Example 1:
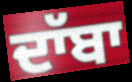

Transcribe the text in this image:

ਦਾੱਬਾ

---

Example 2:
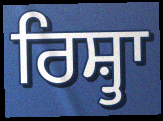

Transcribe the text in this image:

ਰਿਸ਼੍ਤਾ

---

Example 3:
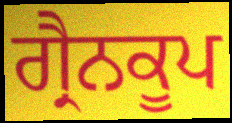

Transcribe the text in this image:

ਗ੍ਰੈਨਕੂਪ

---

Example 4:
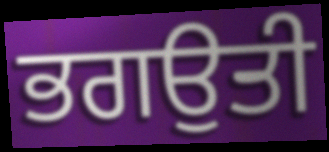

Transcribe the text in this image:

ਭਗਉਤੀ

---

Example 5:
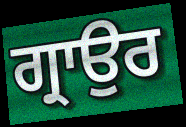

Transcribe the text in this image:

ਗ੍ਰਾਉਰ